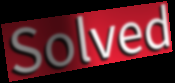
Solved